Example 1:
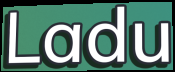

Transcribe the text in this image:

Ladu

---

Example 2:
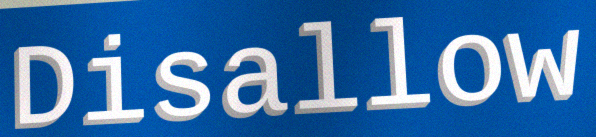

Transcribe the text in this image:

Disallow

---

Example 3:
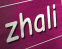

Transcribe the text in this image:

zhali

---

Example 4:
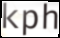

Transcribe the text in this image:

kph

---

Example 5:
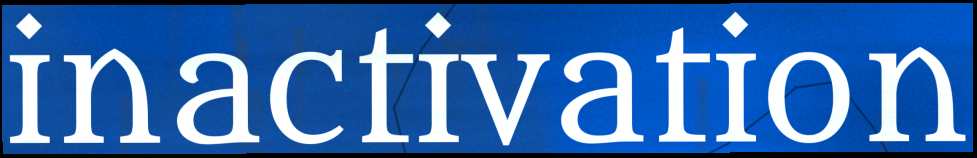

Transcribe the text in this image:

inactivation